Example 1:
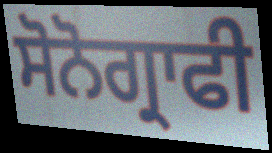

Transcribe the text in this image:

ਸੋਨੋਗ੍ਰਾਫੀ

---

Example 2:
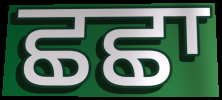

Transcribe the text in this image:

ਛਛਾ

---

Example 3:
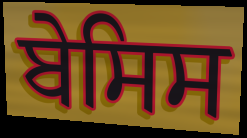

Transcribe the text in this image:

ਬੇਸਿਸ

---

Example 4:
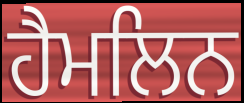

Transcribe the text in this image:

ਹੈਮਲਿਨ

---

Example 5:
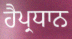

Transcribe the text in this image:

ਹੈਪ੍ਰਧਾਨ